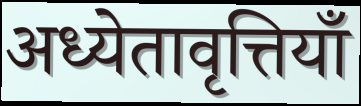
अध्येतावृत्तियाँ